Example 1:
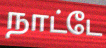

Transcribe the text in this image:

நாட்டே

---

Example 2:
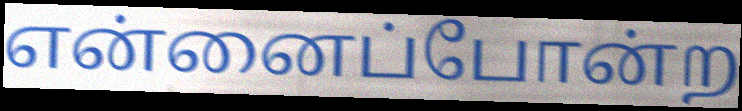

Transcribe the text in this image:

என்னைப்போன்ற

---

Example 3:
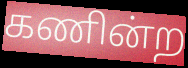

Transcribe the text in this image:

கணின்ற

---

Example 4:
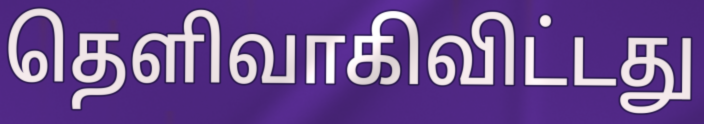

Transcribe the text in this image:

தெளிவாகிவிட்டது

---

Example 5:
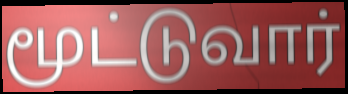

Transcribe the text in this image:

மூட்டுவார்